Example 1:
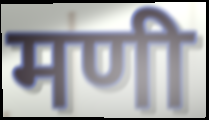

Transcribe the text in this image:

मणी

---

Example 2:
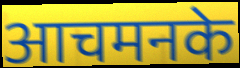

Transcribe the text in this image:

आचमनके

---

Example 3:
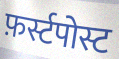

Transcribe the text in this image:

फ़र्स्टपोस्ट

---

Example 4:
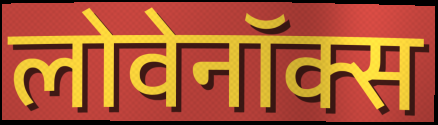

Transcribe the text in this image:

लोवेनॉक्स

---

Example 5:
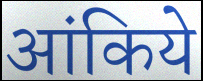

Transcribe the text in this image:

आंकिये